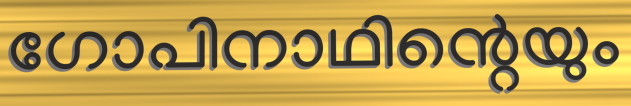
ഗോപിനാഥിന്റെയും